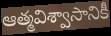
ఆత్మవిశ్వాసానికీ